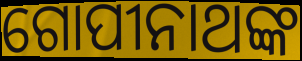
ଗୋପୀନାଥଙ୍କ